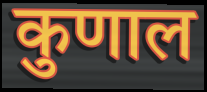
कुणाल